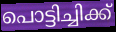
പൊട്ടിച്ചിക്ക്